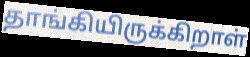
தாங்கியிருக்கிறாள்